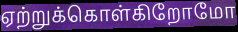
ஏற்றுக்கொள்கிறோமோ